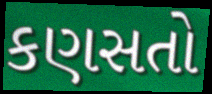
કણસતો